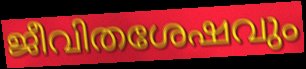
ജീവിതശേഷവും